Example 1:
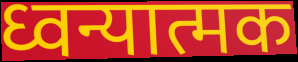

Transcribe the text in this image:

ध्वन्यात्मक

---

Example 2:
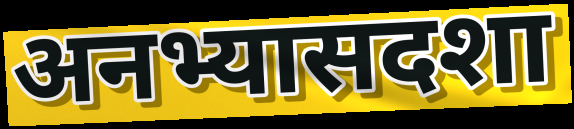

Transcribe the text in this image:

अनभ्यासदशा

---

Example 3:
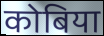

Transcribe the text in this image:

कोबिया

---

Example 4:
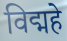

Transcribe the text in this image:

विद्महे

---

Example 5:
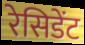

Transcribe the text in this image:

रेसिडेंट